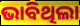
ଭାବିଥିଲା